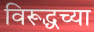
विरूद्धच्या